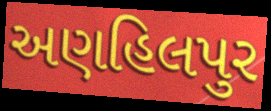
અણહિલપુર